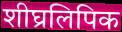
शीघ्रलिपिक